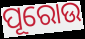
ପୂରୋଉ